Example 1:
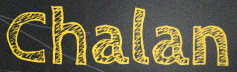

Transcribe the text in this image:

Chalan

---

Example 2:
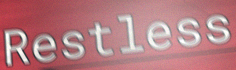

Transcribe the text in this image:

Restless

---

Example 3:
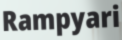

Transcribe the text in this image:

Rampyari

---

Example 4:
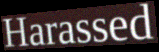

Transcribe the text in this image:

Harassed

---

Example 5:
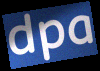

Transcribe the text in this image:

dpa